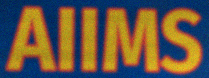
AIIMS